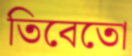
তিবেতো